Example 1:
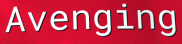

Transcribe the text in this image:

Avenging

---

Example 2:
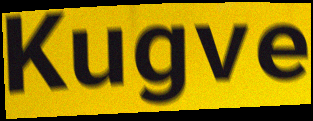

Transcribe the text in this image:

Kugve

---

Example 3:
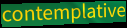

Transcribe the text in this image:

contemplative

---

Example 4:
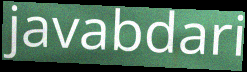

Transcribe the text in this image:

javabdari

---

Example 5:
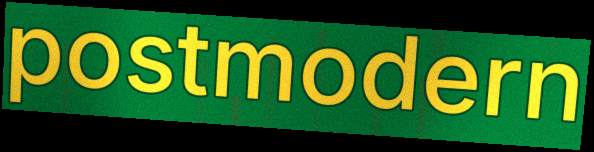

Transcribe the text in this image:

postmodern